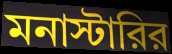
মনাস্টারির